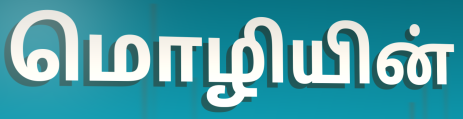
மொழியின்